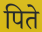
पिते